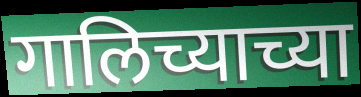
गालिच्याच्या